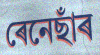
ৰেনেছাঁৰ